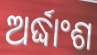
ଅର୍ଦ୍ଧାଂଶ